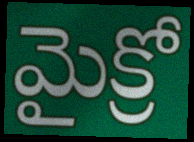
మైక్రో